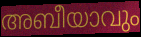
അബീയാവും